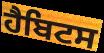
ਹੈਬਿਟਸ